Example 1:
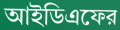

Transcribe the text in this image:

আইডিএফের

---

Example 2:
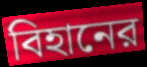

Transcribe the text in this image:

বিহানের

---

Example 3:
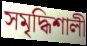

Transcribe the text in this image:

সমৃদ্ধিশালী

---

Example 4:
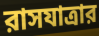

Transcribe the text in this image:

রাসযাত্রার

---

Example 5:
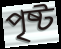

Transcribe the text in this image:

পৃষ্ট